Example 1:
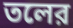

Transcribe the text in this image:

তলের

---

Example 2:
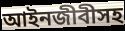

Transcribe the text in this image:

আইনজীবীসহ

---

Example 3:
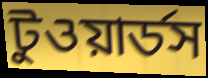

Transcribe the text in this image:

টুওয়ার্ডস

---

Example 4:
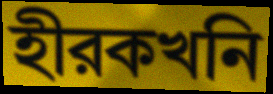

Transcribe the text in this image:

হীরকখনি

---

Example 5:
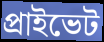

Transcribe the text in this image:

প্রাইভেট